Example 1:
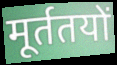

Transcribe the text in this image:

मूर्ततयों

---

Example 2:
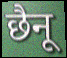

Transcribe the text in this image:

छैनू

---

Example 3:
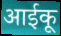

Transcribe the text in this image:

आईकू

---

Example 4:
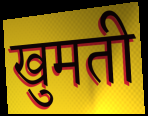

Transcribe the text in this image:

खुमती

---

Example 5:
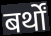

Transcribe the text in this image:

बर्थों